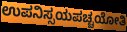
ಉಪನಿಸ್ಸಯಪಚ್ಚಯೋತಿ